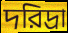
দরিদ্রা